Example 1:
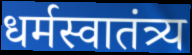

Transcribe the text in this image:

धर्मस्वातंत्र्य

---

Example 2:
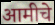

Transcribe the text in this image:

आमीचे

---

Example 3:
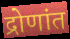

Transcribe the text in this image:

द्रोणांत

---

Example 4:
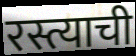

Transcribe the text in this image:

रस्त्याची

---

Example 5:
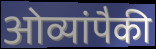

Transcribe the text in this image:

ओव्यांपैकी